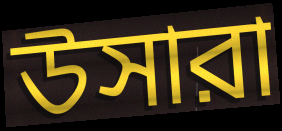
উসারা